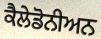
ਕੈਲੇਡੋਨੀਅਨ